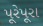
પૂરેપૂરા